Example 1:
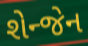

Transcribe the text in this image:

શેન્જેન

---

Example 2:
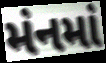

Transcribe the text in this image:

મંનમાં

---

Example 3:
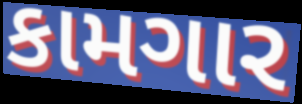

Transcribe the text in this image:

કામગાર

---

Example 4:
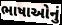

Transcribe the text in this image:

ભાષાઓનું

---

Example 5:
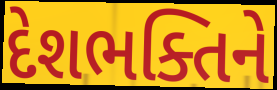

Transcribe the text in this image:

દેશભક્તિને